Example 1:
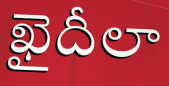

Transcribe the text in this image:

ఖైదీలా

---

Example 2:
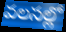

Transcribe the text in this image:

వలసల్లో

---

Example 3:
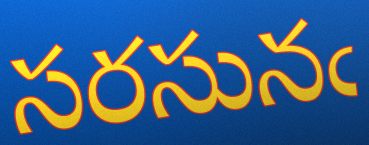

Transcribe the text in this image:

సరసునఁ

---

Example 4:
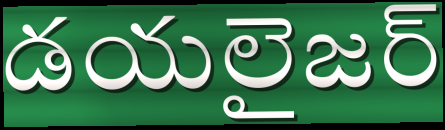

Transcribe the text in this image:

డయలైజర్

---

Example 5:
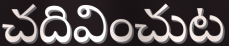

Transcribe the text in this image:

చదివించుట